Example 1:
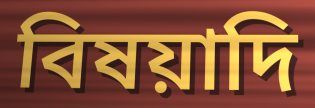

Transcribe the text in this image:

বিষয়াদি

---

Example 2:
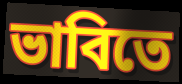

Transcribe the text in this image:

ভাবিতে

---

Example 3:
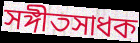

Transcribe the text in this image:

সঙ্গীতসাধক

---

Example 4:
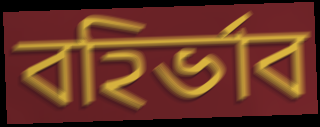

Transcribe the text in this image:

বহির্ভাব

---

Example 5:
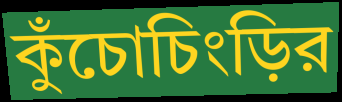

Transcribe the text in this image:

কুঁচোচিংড়ির